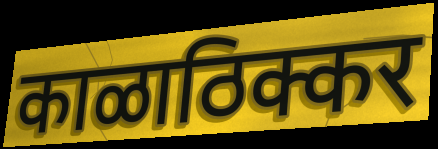
काळाठिक्कर